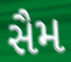
સૈમ